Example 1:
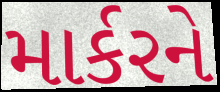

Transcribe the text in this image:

માર્કરને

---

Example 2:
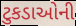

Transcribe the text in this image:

ટુકડાઓની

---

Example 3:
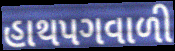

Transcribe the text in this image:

હાથપગવાળી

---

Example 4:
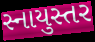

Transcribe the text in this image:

સ્નાયુસ્તર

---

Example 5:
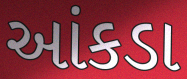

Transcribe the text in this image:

આંકડા